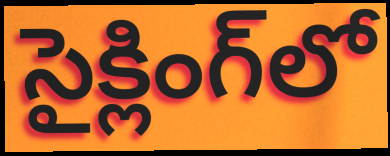
సైక్లింగ్‌లో